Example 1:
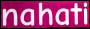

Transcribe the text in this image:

nahati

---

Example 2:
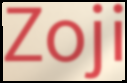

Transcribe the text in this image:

Zoji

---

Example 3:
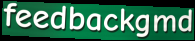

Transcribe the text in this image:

feedbackgmd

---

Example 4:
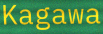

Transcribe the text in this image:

Kagawa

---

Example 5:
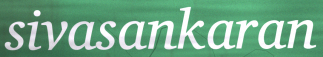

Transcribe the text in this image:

sivasankaran